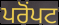
ਪਰੋਂਪਟ